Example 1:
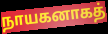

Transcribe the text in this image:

நாயகனாகத்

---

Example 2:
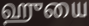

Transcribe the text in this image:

ஹுயை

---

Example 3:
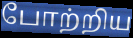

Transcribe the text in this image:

போற்றிய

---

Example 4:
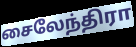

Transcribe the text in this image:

சைலேந்திரா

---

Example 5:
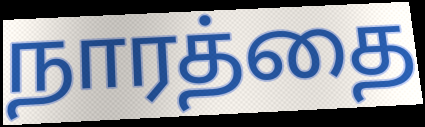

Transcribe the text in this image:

நாரத்தை